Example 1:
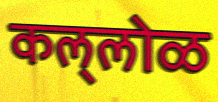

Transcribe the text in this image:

कल्लोळ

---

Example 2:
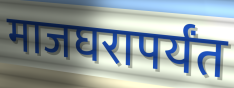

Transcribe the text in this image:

माजघरापर्यंत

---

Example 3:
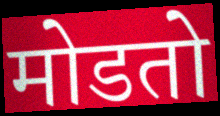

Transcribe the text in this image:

मोडतो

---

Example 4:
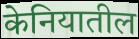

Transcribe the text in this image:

केनियातील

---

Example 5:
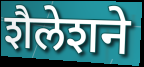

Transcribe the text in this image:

शैलेशने